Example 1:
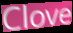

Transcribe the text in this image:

Clove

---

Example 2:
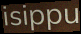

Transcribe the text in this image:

isippu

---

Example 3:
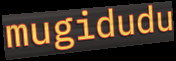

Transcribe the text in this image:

mugidudu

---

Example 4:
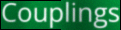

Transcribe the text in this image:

Couplings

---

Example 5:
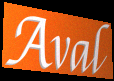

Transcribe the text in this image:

Aval